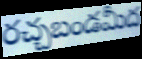
రచ్చబండమీద